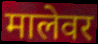
मालेवर